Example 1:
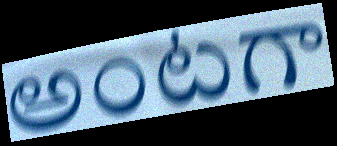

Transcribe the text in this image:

అంటగా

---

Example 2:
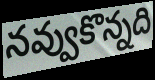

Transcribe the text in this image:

నవ్వుకొన్నది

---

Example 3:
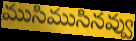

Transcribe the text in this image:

ముసిముసినవ్వు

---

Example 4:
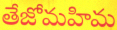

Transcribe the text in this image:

తేజోమహిమ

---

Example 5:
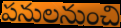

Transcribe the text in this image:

పనులనుంచి